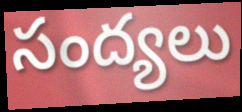
సంద్యలు